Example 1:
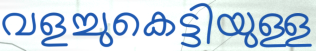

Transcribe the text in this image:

വളച്ചുകെട്ടിയുള്ള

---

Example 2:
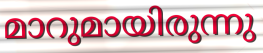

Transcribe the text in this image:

മാറുമായിരുന്നു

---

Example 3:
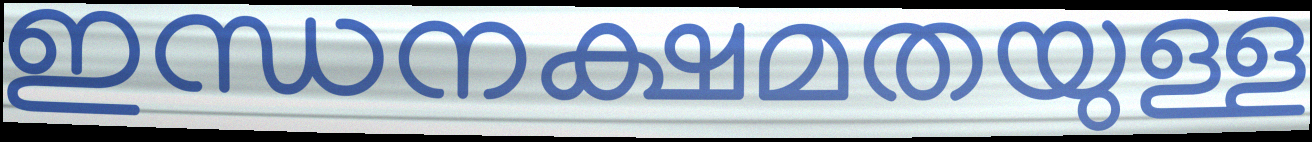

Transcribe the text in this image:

ഇന്ധനക്ഷമതയുള്ള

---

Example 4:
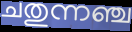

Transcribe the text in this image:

ചതുന്നഞ്ച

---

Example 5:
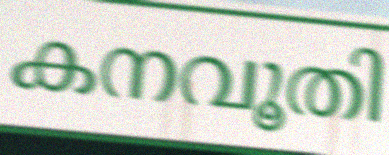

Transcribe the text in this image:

കനവൂതി